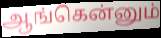
ஆங்கென்னும்